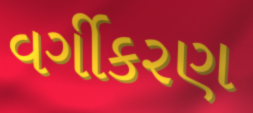
વર્ગીકરણ